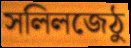
সলিলজেঠু